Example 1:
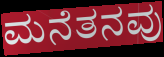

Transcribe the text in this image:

ಮನೆತನವು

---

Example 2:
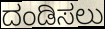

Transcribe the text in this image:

ದಂಡಿಸಲು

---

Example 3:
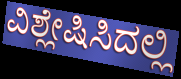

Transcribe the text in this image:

ವಿಶ್ಲೇಷಿಸಿದಲ್ಲಿ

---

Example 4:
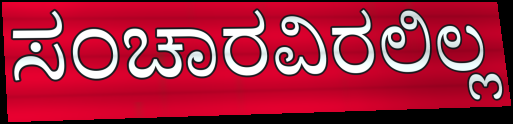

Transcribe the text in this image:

ಸಂಚಾರವಿರಲಿಲ್ಲ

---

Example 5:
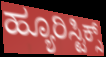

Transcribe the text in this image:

ಹ್ಯೂರಿಸ್ಟಿಕ್ಸ್